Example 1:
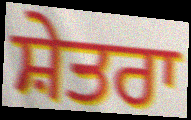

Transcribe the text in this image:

ਸ਼ੇਤਰਾ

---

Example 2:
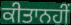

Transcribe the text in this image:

ਕੀਤਾਨਹੀਂ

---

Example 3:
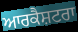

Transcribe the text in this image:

ਆਰਕੈਸ਼ਟਰਾ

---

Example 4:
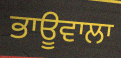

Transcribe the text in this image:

ਭਾਊਵਾਲਾ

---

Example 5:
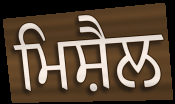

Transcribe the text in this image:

ਮਿਸ਼ੈਲ